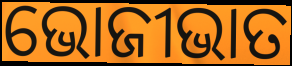
ଭୋଜୀଭାତ